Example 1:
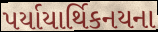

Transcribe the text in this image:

પર્યાયાર્થિકનયના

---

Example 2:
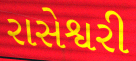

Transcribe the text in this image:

રાસેશ્વરી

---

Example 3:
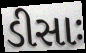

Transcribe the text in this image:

ડીસાઃ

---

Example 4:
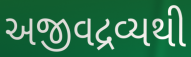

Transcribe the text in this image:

અજીવદ્રવ્યથી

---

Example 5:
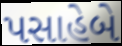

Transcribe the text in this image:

પસાહેબે